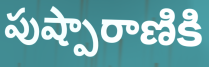
పుష్పారాణికి